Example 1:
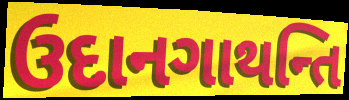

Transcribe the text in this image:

ઉદાનગાથન્તિ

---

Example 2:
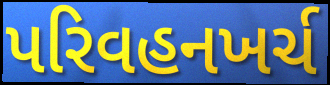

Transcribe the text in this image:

પરિવહનખર્ચ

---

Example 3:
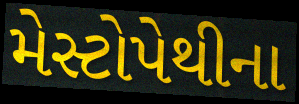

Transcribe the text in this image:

મેસ્ટોપેથીના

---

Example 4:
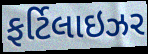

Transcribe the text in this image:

ફર્ટિલાઇઝર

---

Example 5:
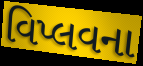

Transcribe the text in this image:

વિપ્લવના